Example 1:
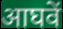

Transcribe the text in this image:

आघवें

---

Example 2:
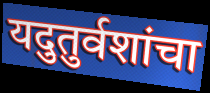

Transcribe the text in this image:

यदुतुर्वशांचा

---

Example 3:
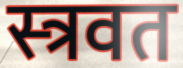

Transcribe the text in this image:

स्त्रवत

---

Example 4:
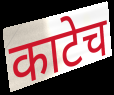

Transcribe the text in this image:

काटेच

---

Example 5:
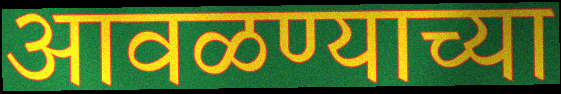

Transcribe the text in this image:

आवळण्याच्या